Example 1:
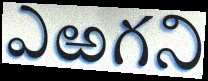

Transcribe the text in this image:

ఎఱగని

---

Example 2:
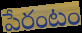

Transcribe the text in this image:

పేరంటం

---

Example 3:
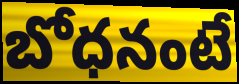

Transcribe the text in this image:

బోధనంటే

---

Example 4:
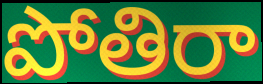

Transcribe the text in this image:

పోతిరా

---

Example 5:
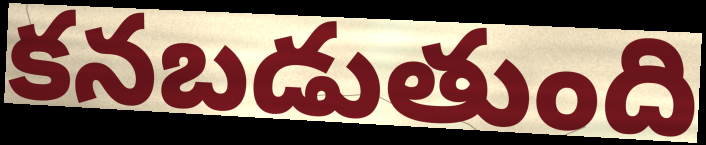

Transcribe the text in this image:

కనబడుతుంది